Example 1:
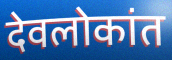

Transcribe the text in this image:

देवलोकांत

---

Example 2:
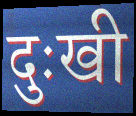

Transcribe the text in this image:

दुःखी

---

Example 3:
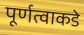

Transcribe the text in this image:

पूर्णत्वाकडे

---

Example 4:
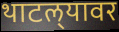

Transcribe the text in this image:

थाटल्यावर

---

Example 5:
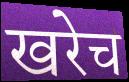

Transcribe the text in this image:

खरेच